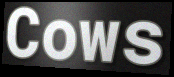
Cows